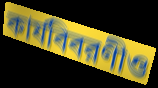
কার্যবিবরণীও